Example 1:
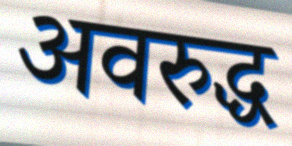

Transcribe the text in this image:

अवरुद्ध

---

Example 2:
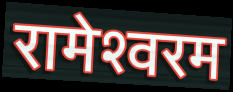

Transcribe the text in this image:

रामेश्वरम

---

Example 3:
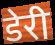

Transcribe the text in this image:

डेरी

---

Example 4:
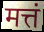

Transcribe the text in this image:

मत्तं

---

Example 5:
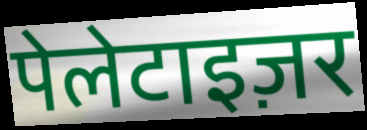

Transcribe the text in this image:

पेलेटाइज़र